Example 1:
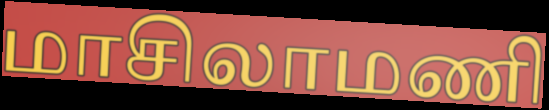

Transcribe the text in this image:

மாசிலாமணி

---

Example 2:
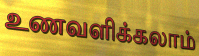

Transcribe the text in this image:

உணவளிக்கலாம்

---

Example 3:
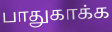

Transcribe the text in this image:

பாதுகாக்க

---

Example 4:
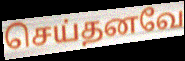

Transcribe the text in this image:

செய்தனவே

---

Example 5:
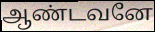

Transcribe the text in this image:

ஆண்டவனே